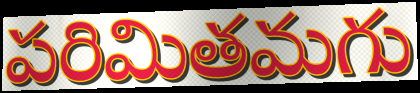
పరిమితమగు